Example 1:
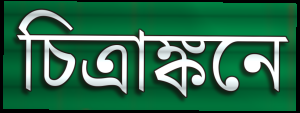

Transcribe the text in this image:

চিত্রাঙ্কনে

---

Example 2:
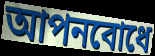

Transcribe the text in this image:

আপনবোধে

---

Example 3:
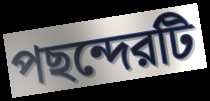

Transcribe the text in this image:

পছন্দেরটি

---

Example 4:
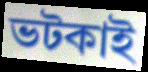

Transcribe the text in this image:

ভটকাই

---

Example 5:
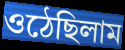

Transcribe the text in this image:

ওঠেছিলাম